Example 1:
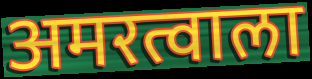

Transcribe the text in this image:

अमरत्वाला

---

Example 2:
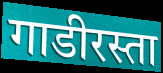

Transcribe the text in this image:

गाडीरस्ता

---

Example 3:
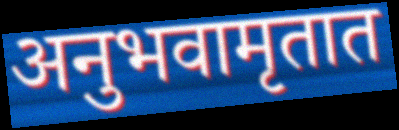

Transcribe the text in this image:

अनुभवामृतात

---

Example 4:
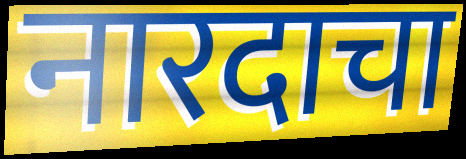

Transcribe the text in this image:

नारदाचा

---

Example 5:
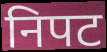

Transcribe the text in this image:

निपट